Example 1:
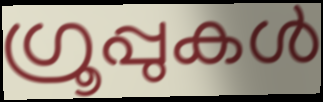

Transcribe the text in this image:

ഗ്രൂപ്പുകൾ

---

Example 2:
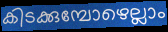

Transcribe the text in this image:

കിടക്കുമ്പോഴെല്ലാം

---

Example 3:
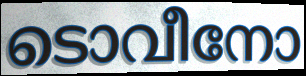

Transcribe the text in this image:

ടൊവീനോ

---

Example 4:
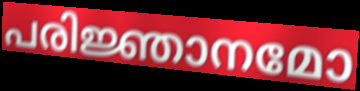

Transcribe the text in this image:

പരിജ്ഞാനമോ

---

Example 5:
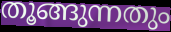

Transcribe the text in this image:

തൂങ്ങുന്നതും